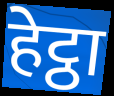
हेट्ठा